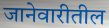
जानेवारीतील